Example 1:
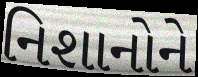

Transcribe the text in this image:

નિશાનોને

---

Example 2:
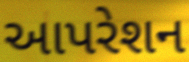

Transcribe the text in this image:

આપરેશન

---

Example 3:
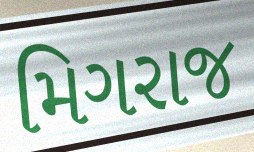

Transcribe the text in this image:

મિગરાજ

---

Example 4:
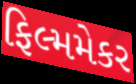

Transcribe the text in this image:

ફિલ્મમેકર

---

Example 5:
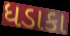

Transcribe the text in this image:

ધડાકા